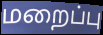
மறைப்பு